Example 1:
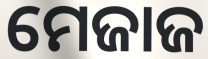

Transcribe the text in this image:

ମେଜାଜ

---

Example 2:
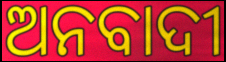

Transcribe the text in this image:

ଅନବାଦୀ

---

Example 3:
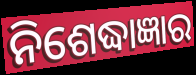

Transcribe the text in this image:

ନିଶେଦ୍ଧାଜ୍ଞାର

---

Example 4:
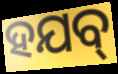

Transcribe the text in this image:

ହଯବ୍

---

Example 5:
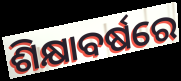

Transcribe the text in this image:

ଶିକ୍ଷାବର୍ଷରେ